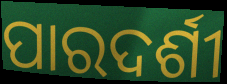
ପାରଦର୍ଶୀ